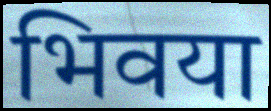
भिवया